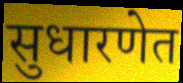
सुधारणेत